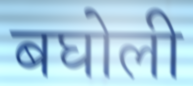
बघोली